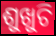
ଶୁଖୁଚି